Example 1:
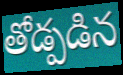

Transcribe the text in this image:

తోడ్పడిన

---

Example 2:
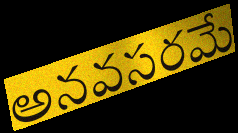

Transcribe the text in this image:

అనవసరమే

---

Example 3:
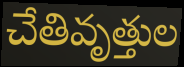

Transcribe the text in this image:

చేతివృత్తుల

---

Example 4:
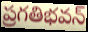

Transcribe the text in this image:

ప్రగతిభవన్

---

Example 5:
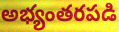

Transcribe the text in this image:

అభ్యంతరపడి